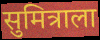
सुमित्राला